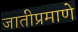
जातीप्रमाणे